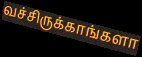
வச்சிருக்காங்களா